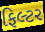
ફિલ્ટર